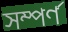
সম্পর্ণ